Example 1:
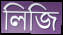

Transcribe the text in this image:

লিজি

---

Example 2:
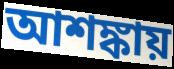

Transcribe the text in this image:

আশঙ্কায়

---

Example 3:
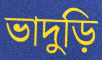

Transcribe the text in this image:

ভাদুড়ি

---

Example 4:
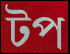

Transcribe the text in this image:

টপ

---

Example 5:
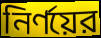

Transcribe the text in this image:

নির্ণয়ের